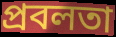
প্ৰবলতা